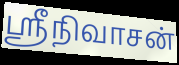
ஸ்ரீநிவாசன்